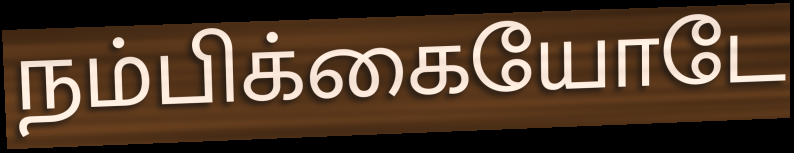
நம்பிக்கையோடே